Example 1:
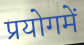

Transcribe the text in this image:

प्रयोगमें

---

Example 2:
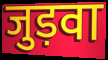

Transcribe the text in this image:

जुड़वा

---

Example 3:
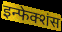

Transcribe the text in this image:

इन्फेक्शंस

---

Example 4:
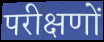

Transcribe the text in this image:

परीक्षणों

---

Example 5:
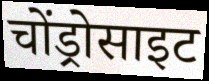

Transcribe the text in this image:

चोंड्रोसाइट